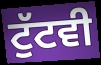
ਟੁੱਟਵੀ